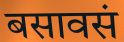
बसावसं